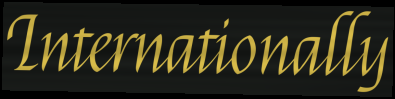
Internationally